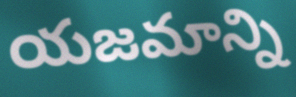
యజమాన్ని